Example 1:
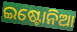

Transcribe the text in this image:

ଇଷ୍ଟୋନିଆ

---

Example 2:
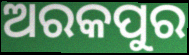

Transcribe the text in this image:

ଅରକପୁର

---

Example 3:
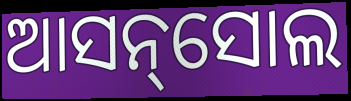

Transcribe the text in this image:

ଆସନ୍‌ସୋଲ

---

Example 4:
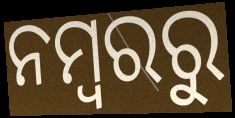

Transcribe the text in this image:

ନମ୍ୱରରୁ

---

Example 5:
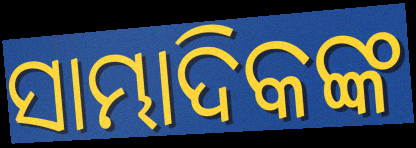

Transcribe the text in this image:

ସାମ୍ଭାଦିକଙ୍କ